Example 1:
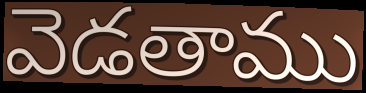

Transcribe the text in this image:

వెడతాము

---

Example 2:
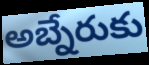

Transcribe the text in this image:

అబ్నేరుకు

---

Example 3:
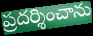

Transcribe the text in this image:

ప్రదర్శించాను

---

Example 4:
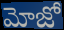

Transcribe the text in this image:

మోజో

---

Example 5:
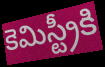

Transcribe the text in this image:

కెమిస్ట్రీకి